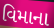
વિમાના